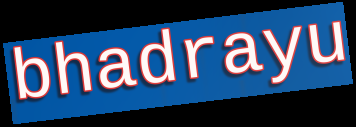
bhadrayu